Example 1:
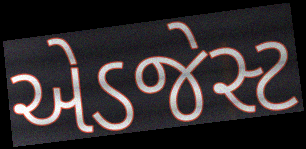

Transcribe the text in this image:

એડજેસ્ટ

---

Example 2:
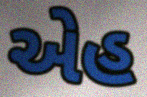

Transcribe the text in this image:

એહ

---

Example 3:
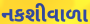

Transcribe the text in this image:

નકશીવાળા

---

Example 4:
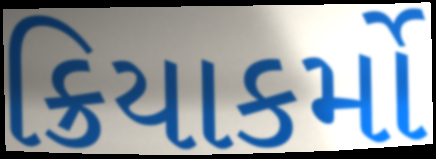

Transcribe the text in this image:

ક્રિયાકર્મો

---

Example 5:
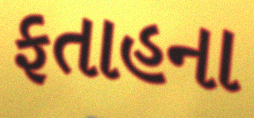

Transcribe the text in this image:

ફતાહના